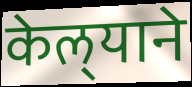
केल्याने